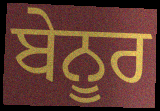
ਬੇਨੂਰ